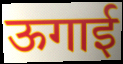
ऊगाई